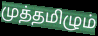
முத்தமிழும்